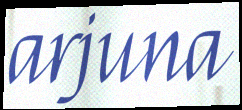
arjuna